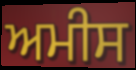
ਅਮੀਸ